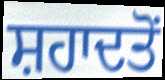
ਸ਼ਹਾਦਤੋਂ